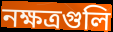
নক্ষত্রগুলি